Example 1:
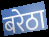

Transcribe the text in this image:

बरेठा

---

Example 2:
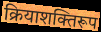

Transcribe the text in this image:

क्रियाशक्तिरूप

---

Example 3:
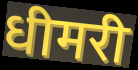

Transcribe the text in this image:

धीमरी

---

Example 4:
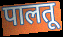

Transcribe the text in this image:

पालतू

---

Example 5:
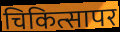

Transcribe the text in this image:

चिकित्सापर